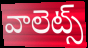
వాలెట్స్